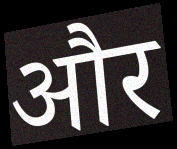
और